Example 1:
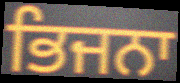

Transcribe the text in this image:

ਭਿਜਨਾ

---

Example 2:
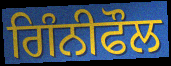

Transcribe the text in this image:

ਗਿੰਨੀਫੌਲ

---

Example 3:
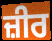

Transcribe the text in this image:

ਜ਼ੀਰ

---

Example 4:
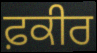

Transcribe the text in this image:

ਫ਼ਕੀਰ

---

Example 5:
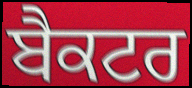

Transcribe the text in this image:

ਬੈਕਟਰ